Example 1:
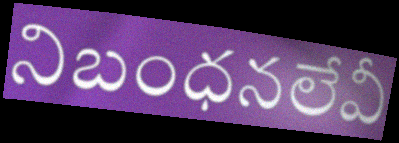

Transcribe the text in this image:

నిబంధనలేవీ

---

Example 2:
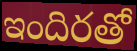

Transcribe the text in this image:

ఇందిరతో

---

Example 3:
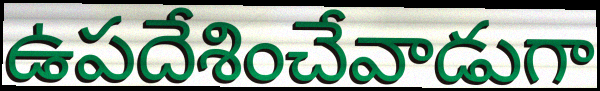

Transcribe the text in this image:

ఉపదేశించేవాడుగా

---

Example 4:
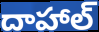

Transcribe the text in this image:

దాహాల్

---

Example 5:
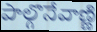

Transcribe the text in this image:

పాల్గొనేవాణ్ణి